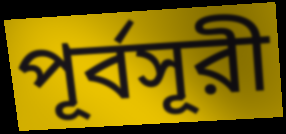
পূর্বসূরী